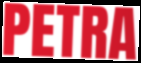
PETRA